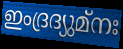
ഇംദ്രദ്യുമ്നഃ